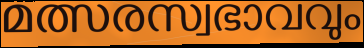
മത്സരസ്വഭാവവും